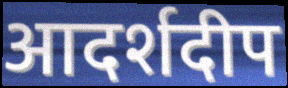
आदर्शदीप